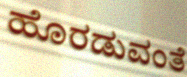
ಹೊರಡುವಂತೆ